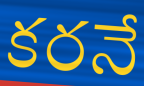
కరనే